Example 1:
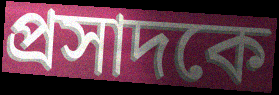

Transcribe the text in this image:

প্রসাদকে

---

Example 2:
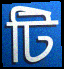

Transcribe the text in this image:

টি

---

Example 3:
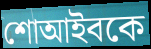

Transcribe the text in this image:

শোআইবকে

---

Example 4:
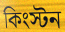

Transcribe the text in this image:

কিংস্টন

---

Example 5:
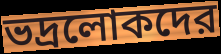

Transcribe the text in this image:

ভদ্রলোকদের